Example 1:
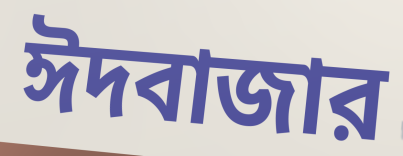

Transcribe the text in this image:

ঈদবাজার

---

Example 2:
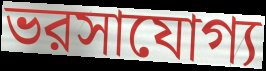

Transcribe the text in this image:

ভরসাযোগ্য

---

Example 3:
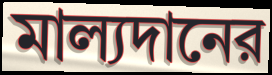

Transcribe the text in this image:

মাল্যদানের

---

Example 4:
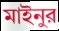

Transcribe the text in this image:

মাইনুর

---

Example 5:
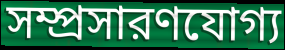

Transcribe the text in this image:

সম্প্রসারণযোগ্য